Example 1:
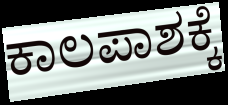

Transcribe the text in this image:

ಕಾಲಪಾಶಕ್ಕೆ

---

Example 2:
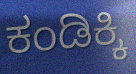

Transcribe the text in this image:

ಕಂಡಿಕ್ಕಿ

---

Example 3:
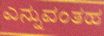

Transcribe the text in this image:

ಎನ್ನುವಂತಹ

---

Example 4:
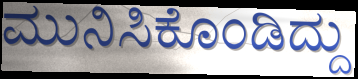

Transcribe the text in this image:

ಮುನಿಸಿಕೊಂಡಿದ್ದು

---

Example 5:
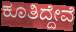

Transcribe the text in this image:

ಕೂತಿದ್ದೇವೆ